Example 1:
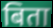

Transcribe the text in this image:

बिता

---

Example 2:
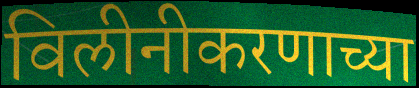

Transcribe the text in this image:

विलीनीकरणाच्या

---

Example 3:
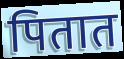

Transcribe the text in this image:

पितात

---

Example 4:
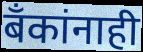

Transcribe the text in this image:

बँकांनाही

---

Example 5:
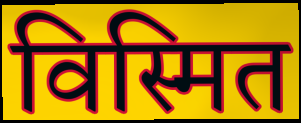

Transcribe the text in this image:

विस्मित